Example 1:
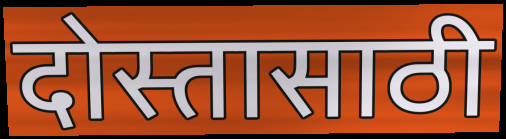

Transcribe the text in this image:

दोस्तासाठी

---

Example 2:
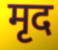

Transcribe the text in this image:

मृद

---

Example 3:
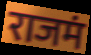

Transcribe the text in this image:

राजमं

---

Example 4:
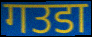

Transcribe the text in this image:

गउडा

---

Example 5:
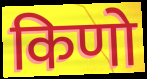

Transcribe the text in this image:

किणो